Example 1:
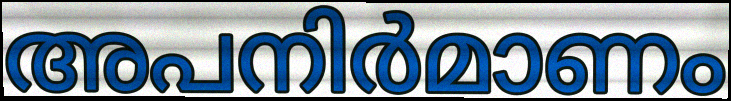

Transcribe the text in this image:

അപനിർമാണം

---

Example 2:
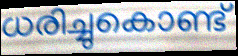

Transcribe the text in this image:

ധരിച്ചുകൊണ്ട്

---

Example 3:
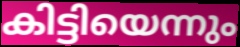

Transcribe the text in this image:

കിട്ടിയെന്നും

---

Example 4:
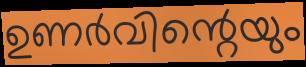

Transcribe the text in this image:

ഉണർവിന്റെയും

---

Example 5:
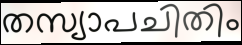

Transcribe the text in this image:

തസ്യാപചിതിം